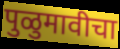
पुळुमावीचा